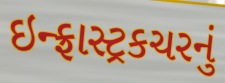
ઇન્ફ્રાસ્ટ્રકચરનું